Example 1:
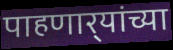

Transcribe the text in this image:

पाहणार्‍यांच्या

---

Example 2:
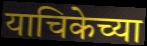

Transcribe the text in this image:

याचिकेच्या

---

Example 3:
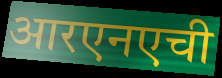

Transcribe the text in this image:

आरएनएची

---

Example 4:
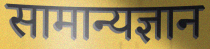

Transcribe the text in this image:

सामान्यज्ञान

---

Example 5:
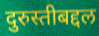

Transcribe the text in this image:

दुरुस्तीबद्दल